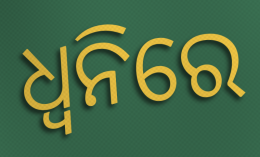
ଧ୍ୱନିରେ